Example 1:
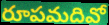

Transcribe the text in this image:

రూపమదివో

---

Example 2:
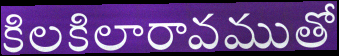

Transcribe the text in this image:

కిలకిలారావముతో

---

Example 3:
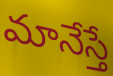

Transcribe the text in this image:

మానేస్తే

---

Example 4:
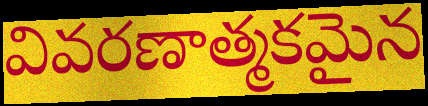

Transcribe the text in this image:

వివరణాత్మకమైన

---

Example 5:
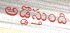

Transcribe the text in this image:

అడ్డొస్తుంది